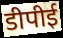
डीपीई